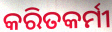
କରିତକର୍ମୀ